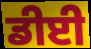
ਡੀਈ